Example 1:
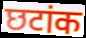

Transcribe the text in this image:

छटांक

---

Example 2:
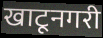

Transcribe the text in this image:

खाटूनगरी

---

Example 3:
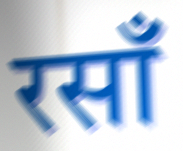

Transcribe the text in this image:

रसाँ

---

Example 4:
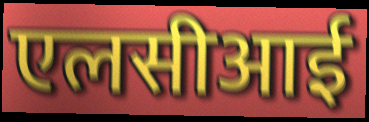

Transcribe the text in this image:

एलसीआई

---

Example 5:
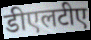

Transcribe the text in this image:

डीएलटीए